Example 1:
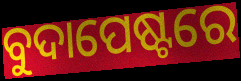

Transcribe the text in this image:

ବୁଦାପେଷ୍ଟରେ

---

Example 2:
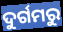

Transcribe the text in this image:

ଦୁର୍ଗମରୁ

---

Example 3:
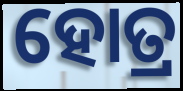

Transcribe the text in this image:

ହୋତ୍ର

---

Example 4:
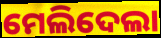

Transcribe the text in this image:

ମେଲିଦେଲା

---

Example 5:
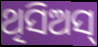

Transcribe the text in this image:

ଥିସିଅସ୍